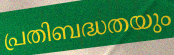
പ്രതിബദ്ധതയും